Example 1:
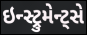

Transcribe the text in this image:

ઇન્સ્ટ્રુમેન્ટ્સે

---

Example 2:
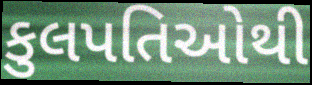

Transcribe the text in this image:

કુલપતિઓથી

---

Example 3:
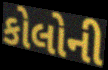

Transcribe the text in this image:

કોલોની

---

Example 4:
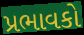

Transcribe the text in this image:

પ્રભાવકો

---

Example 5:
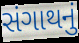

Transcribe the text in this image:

સંગાથનું